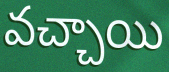
వచ్చాయి